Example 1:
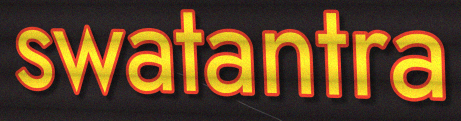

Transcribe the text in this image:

swatantra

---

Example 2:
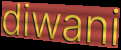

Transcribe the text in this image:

diwani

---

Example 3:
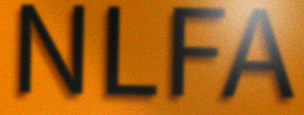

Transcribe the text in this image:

NLFA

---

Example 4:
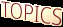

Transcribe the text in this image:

TOPICS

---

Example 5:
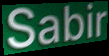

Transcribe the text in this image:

Sabir